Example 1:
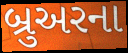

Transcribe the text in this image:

બ્રુઅરના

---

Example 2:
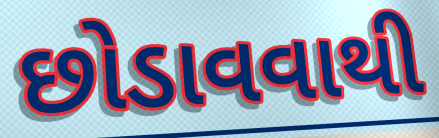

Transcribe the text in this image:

છોડાવવાથી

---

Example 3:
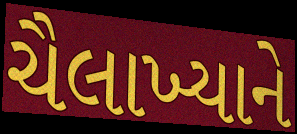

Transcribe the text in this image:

ચૈલાખ્યાને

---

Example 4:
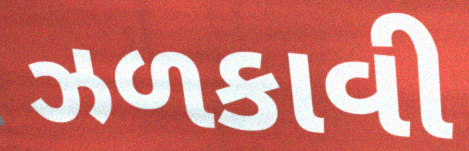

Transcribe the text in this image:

ઝળકાવી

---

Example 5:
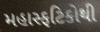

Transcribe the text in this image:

મહાસ્ફટિકોથી